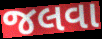
જલવા